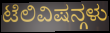
ಟೆಲಿವಿಷನ್ಗಳು